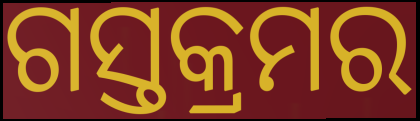
ଗସ୍ତକ୍ରମର